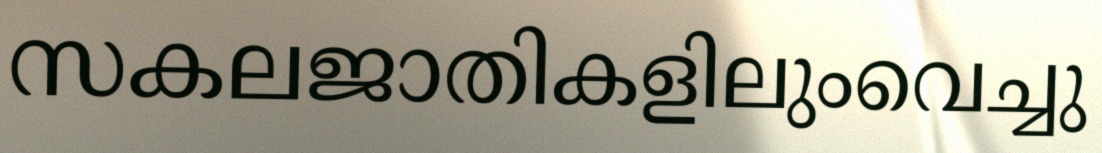
സകലജാതികളിലുംവെച്ചു